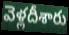
వెళ్లదీశారు